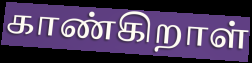
காண்கிறாள்